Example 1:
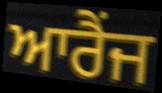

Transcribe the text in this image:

ਆਰੈਂਜ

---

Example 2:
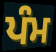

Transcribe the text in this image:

ਪੰਮ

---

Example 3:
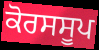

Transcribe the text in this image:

ਕੋਰਸਸੂਪ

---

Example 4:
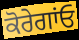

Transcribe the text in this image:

ਕੋਰੇਗਾਂਓ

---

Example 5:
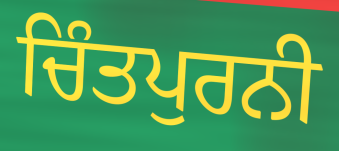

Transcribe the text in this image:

ਚਿੰਤਪੁਰਨੀ